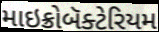
માઇક્રોબૅક્ટેરિયમ